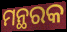
ମନ୍ଥରକ